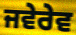
ਜਵੇਰੇਵ